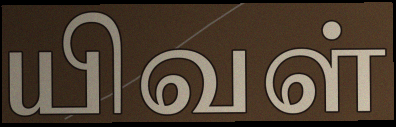
யிவள்